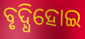
ବୃଦ୍ଧିହୋଇ